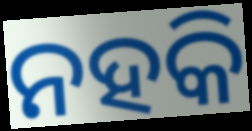
ନହକି